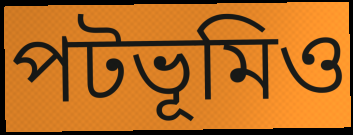
পটভূমিও